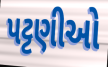
પટ્ટણીઓ